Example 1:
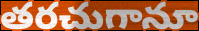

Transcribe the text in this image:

తరచుగానూ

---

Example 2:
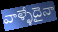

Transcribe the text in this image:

వాళ్ళేదైనా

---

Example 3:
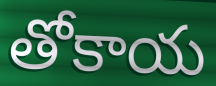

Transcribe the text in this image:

తోకాయ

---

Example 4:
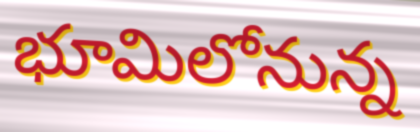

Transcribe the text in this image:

భూమిలోనున్న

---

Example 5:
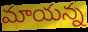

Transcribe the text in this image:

మాయన్న